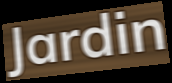
Jardin